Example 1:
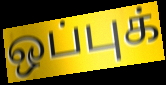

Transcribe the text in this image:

ஒப்புக்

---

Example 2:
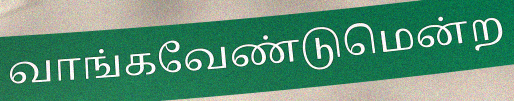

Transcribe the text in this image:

வாங்கவேண்டுமென்ற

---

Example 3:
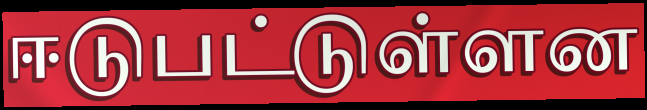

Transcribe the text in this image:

ஈடுபட்டுள்ளன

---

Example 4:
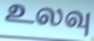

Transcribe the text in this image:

உலவு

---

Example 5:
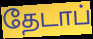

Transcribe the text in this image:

தேடாப்